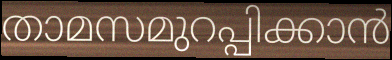
താമസമുറപ്പിക്കാൻ